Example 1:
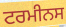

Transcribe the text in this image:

ਟਰਮੀਨਸ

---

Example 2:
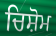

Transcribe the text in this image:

ਚਿਸ਼ੋਮ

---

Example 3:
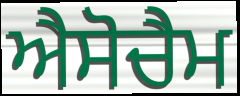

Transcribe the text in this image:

ਐਸੋਚੈਮ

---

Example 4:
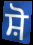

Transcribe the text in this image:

ਸ਼ੋ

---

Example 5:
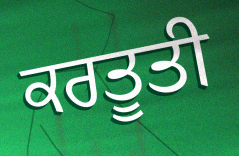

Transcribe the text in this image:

ਕਰਤੂਤੀ